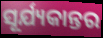
ସୂର୍ଯ୍ୟକାନ୍ତର